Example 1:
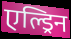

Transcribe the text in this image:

एल्ड्रिन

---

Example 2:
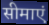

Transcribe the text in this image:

सीमाएं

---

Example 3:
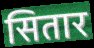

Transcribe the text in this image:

सितार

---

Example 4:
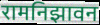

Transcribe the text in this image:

रामनिझावन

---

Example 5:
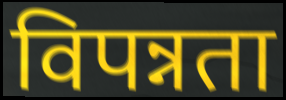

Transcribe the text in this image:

विपन्नता